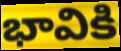
భావికి